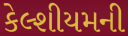
કેલ્શીયમની